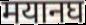
मयानघ